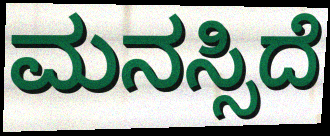
ಮನಸ್ಸಿದೆ